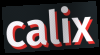
calix